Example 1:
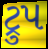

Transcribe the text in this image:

ટ્રુપ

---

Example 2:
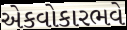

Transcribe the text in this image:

એકવોકારભવે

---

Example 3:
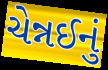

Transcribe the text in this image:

ચેન્નઈનું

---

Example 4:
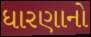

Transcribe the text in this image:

ધારણાનો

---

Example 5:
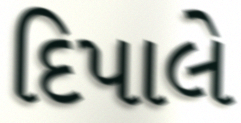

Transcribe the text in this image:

દિપાલે